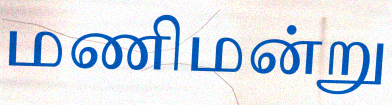
மணிமன்று